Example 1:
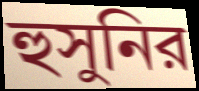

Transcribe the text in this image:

হুসুনির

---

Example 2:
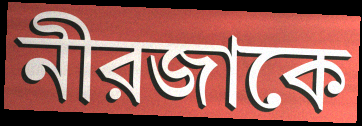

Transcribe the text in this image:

নীরজাকে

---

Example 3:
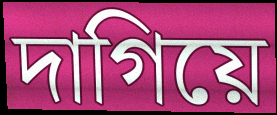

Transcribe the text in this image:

দাগিয়ে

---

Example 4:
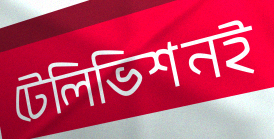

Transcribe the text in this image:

টেলিভিশনই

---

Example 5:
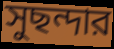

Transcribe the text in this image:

সুছন্দার